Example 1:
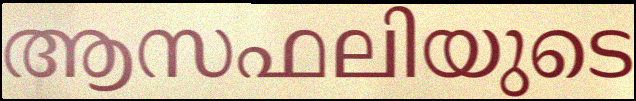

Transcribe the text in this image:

ആസഫലിയുടെ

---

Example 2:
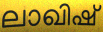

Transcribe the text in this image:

ലാഖിഷ്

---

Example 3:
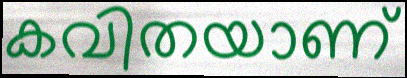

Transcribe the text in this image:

കവിതയാണ്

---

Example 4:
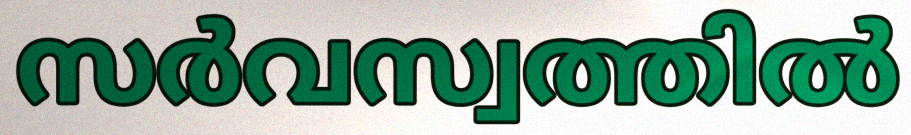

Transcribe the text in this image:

സർവസ്വത്തിൽ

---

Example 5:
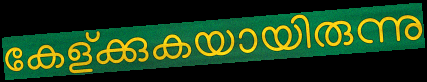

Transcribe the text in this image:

കേള്ക്കുകയായിരുന്നു